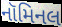
નૉમિનલ